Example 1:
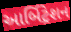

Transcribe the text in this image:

આર્બિટ્રેશન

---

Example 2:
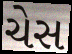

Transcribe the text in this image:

ચેસ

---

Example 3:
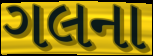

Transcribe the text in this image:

ગલના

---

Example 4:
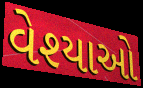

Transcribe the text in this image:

વેશ્યાઓ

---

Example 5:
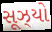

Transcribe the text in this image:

સૂઝ્યો